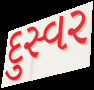
દુસ્વર